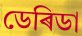
ডেৰিডা